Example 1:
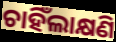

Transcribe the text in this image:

ଚାହିଁଲାକ୍ଷଣି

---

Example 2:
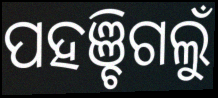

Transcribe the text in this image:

ପହଞ୍ଚିଗଲୁଁ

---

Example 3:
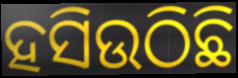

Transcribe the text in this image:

ହସିଉଠିଛି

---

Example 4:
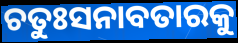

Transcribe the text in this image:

ଚତୁଃସନାବତାରକୁ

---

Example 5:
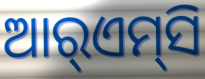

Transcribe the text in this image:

ଆର୍‌ଏମ୍‌ସି